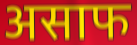
असाफ